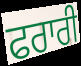
ਫਰਾਰੀ